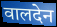
वालदेन